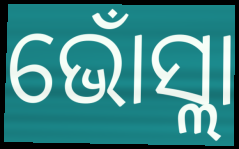
ଭୋଁସ୍ଲା